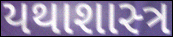
યથાશાસ્‍ત્ર